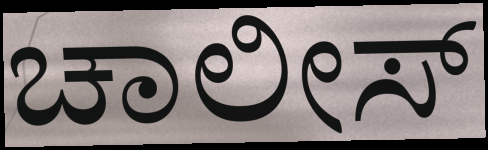
ಚಾಲೀಸ್